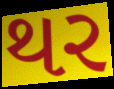
થર